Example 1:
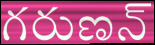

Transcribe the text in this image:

గరుణన్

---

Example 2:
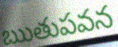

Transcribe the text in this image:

ఋతుపవన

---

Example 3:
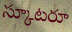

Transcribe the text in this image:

స్కూటరూ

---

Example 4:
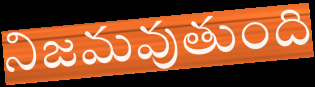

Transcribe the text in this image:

నిజమవుతుంది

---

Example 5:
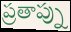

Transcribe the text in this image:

ప్రతాప్ను